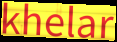
khelar